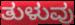
ತುಳುವು